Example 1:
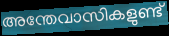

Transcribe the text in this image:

അന്തേവാസികളുണ്ട്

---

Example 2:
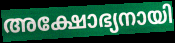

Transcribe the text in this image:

അക്ഷോഭ്യനായി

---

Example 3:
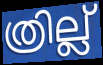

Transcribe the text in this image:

ത്രില്ല്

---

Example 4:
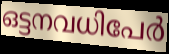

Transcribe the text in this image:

ഒട്ടനവധിപേർ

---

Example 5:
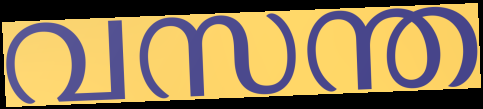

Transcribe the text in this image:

വസന്ത